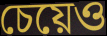
চেয়েও